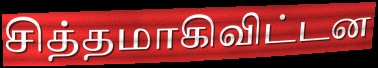
சித்தமாகிவிட்டன